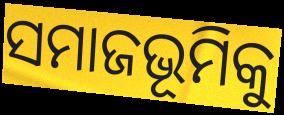
ସମାଜଭୂମିକୁ